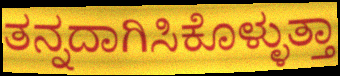
ತನ್ನದಾಗಿಸಿಕೊಳ್ಳುತ್ತಾ